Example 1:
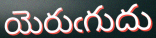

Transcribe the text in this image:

యెరుఁగుదు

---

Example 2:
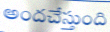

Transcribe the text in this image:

అందచేస్తుంది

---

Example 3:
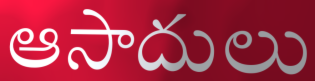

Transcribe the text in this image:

ఆసాదులు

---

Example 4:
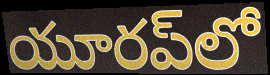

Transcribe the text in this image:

యూరప్‌లో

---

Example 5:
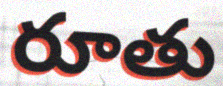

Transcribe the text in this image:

రూతు